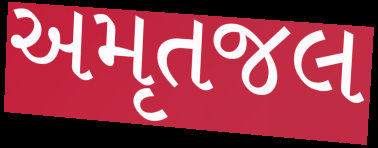
અમૃતજલ